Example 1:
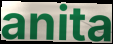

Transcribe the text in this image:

anita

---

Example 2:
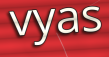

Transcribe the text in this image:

vyas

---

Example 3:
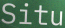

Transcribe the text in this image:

Situ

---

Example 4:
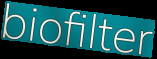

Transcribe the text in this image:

biofilter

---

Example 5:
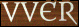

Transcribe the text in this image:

VVER